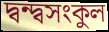
দ্বন্দ্বসংকুল